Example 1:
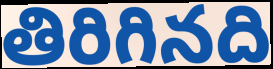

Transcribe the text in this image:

తిరిగినది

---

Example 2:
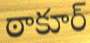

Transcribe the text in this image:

ఠాకూర్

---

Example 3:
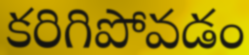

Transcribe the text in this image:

కరిగిపోవడం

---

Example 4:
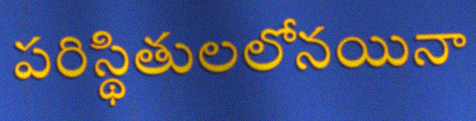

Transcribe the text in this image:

పరిస్థితులలోనయినా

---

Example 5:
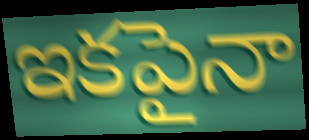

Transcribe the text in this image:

ఇకపైనా